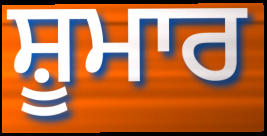
ਸ਼ੂਮਾਰ